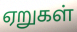
ஏறுகள்